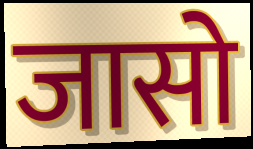
जासो